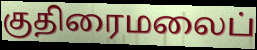
குதிரைமலைப்